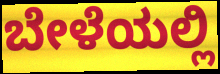
ಬೇಳೆಯಲ್ಲಿ